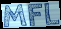
MFL